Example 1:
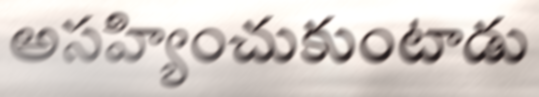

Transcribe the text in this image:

అసహ్యించుకుంటాడు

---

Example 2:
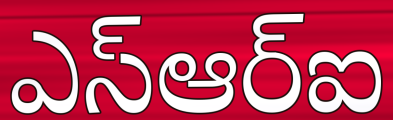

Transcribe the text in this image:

ఎస్ఆర్ఐ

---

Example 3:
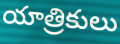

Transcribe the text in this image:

యాత్రికులు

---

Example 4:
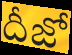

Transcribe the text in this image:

దీజో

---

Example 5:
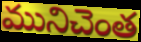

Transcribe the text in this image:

మునిచెంత